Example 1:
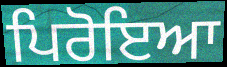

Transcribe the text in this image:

ਪਿਰੋਇਆ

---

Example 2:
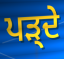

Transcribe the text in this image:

ਪੜ੍ਦੇ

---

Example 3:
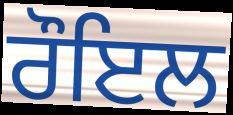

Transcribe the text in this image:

ਰੌਇਲ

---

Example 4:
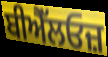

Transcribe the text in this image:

ਬੀਐੱਲਓਜ਼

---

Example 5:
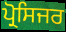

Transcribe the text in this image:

ਪ੍ਰੋਸਿਜਰ